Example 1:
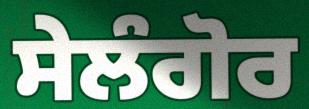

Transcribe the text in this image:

ਸੇਲੰਗੋਰ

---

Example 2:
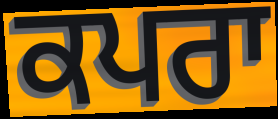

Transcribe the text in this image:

ਕਪਰਾ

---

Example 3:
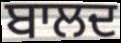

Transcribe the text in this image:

ਬਾਲਦ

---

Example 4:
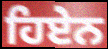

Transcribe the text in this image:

ਹਿਏਨ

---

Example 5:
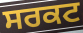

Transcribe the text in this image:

ਸਰਕਟ